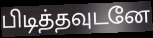
பிடித்தவுடனே